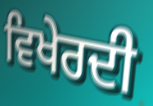
ਵਿਖੇਰਦੀ